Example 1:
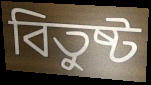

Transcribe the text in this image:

বিতুষ্ট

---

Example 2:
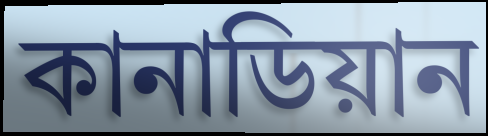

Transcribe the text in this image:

কানাডিয়ান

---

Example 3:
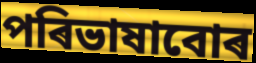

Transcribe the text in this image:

পৰিভাষাবোৰ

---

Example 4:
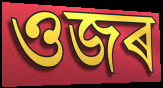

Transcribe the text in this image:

ওজৰ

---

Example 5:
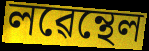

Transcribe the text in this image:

লৱেন্থেল